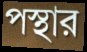
পস্থার